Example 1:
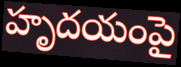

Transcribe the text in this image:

హృదయంపై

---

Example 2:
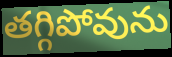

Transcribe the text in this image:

తగ్గిపోవును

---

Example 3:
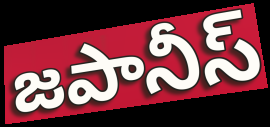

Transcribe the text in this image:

జపానీస్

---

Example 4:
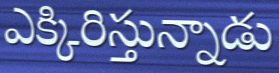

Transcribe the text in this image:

ఎక్కిరిస్తున్నాడు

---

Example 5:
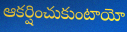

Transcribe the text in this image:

ఆకర్షించుకుంటాయో